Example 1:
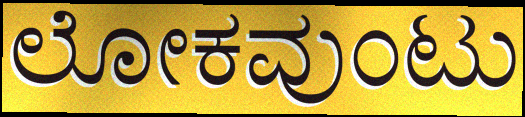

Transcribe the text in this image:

ಲೋಕವುಂಟು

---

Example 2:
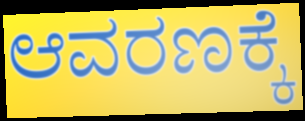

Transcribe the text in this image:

ಆವರಣಕ್ಕೆ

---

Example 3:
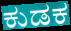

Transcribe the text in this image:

ಕುಡಕ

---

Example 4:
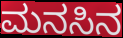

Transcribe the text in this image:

ಮನಸಿನ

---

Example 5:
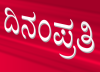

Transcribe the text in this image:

ದಿನಂಪ್ರತಿ